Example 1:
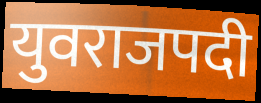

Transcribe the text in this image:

युवराजपदी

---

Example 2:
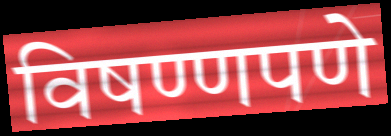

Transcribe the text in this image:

विषण्णपणे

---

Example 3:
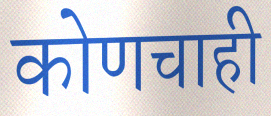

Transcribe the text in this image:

कोणचाही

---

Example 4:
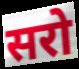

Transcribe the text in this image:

सरो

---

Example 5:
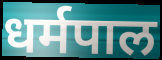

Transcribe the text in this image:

धर्मपाल